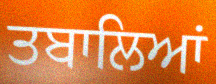
ਤਬਾਲਿਆਂ